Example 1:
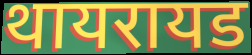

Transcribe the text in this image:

थायरायड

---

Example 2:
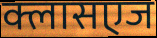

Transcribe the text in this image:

क्लासएज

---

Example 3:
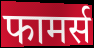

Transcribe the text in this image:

फामर्स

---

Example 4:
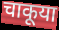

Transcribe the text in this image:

चाकूया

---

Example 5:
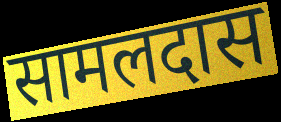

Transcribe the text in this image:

सामलदास